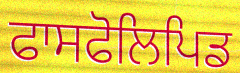
ਫਾਸਫੋਲਿਪਿਡ